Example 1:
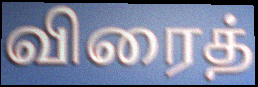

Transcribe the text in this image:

விரைத்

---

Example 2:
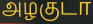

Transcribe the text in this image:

அழகுடா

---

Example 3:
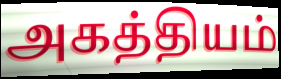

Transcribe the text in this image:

அகத்தியம்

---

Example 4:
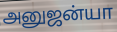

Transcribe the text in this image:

அனுஜன்யா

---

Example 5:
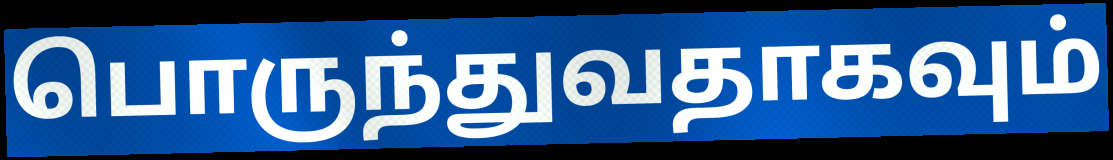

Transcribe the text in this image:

பொருந்துவதாகவும்